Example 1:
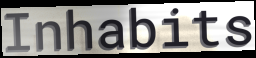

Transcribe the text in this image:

Inhabits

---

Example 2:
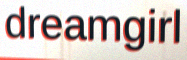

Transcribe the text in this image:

dreamgirl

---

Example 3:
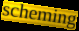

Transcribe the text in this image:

scheming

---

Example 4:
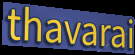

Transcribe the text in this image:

thavarai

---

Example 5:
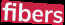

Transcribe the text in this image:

fibers